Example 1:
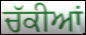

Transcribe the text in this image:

ਚੱਕੀਆਂ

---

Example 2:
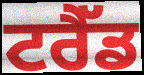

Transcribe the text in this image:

ਟਰੈੱਡ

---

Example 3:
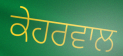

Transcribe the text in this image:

ਕੇਹਰਵਾਲ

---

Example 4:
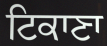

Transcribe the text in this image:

ਟਿਕਾਣਾ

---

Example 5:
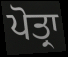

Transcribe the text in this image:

ਪੋਤ੍ਰਾ